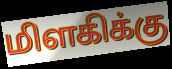
மிளகிக்கு